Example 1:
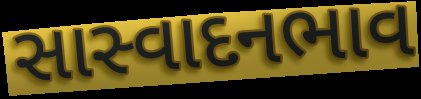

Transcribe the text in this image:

સાસ્વાદનભાવ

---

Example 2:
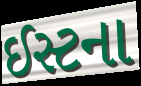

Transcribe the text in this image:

ઈસ્ટના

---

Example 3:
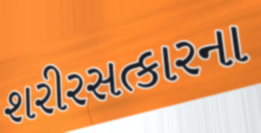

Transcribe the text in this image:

શરીરસત્કારના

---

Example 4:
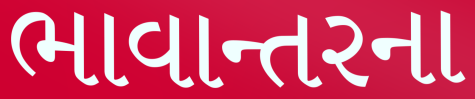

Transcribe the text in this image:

ભાવાન્તરના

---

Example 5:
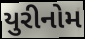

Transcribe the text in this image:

યુરીનોમ